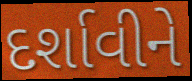
દર્શાવીને